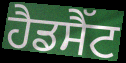
ਹੈਡਸੈੱਟ